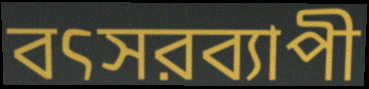
বৎসরব্যাপী